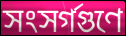
সংসর্গগুণে